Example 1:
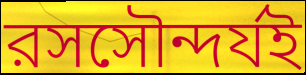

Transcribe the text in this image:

রসসৌন্দর্যই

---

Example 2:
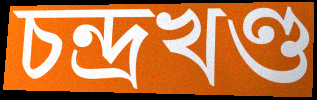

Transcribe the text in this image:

চন্দ্রখণ্ড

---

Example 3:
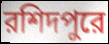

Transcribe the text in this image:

রশিদপুরে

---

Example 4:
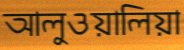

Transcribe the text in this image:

আলুওয়ালিয়া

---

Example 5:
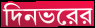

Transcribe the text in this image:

দিনভরের